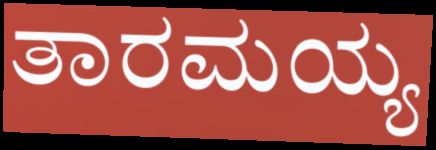
ತಾರಮಯ್ಯ